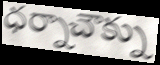
ధర్నాచౌక్ను